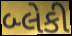
બ્લેકી